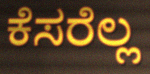
ಕೆಸರೆಲ್ಲ